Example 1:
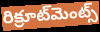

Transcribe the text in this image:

రిక్రూట్‌మెంట్స్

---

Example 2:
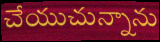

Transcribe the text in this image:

చేయుచున్నాను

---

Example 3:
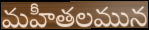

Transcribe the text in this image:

మహీతలమున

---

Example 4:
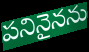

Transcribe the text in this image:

పనినైనను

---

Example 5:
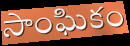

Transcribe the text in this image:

సాంఘికం